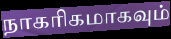
நாகரிகமாகவும்